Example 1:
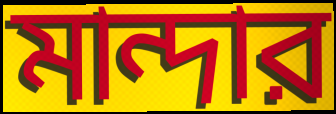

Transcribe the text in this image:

মান্দার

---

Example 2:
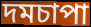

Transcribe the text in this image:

দমচাপা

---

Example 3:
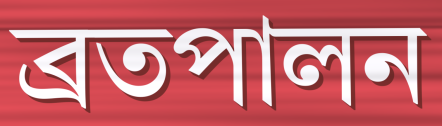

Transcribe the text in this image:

ব্রতপালন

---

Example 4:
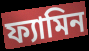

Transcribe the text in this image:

ফ্যামিন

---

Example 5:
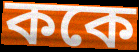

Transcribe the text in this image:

ককে